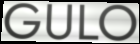
GULO